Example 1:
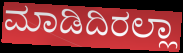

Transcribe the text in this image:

ಮಾಡಿದಿರಲ್ಲಾ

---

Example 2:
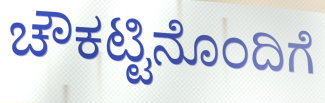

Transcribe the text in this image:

ಚೌಕಟ್ಟಿನೊಂದಿಗೆ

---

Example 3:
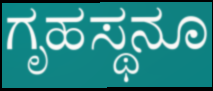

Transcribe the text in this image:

ಗೃಹಸ್ಥನೂ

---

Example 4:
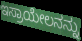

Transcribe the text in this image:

ಇಸ್ರಾಯೇಲನನ್ನು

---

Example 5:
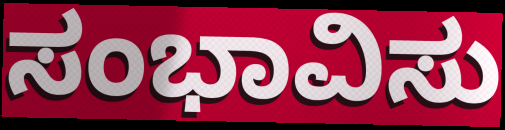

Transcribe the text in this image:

ಸಂಭಾವಿಸು